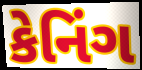
કેનિંગ